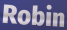
Robin